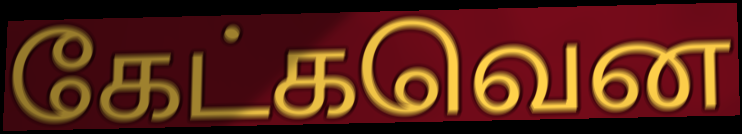
கேட்கவென